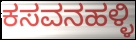
ಕಸವನಹಳ್ಳಿ